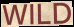
WILD